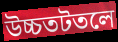
উচ্চতটতলে